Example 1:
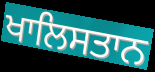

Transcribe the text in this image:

ਖਾਲਿਸਤਾਨ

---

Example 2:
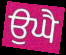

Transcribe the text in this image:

ਉਘੈ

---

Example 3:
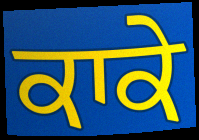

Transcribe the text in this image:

ਕਾਕੇ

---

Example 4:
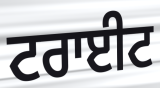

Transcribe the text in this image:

ਟਰਾਈਟ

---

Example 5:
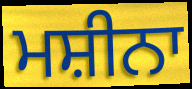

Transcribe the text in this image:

ਮਸ਼ੀਨਾ